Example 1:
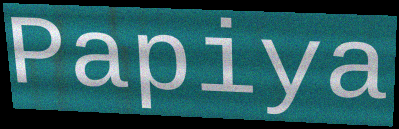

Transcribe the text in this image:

Papiya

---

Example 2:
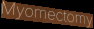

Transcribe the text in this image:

Myomectomy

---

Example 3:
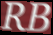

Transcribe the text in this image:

RB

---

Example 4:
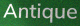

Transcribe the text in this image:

Antique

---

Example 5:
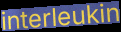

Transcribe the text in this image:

interleukin